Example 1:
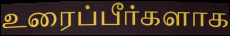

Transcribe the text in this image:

உரைப்பீர்களாக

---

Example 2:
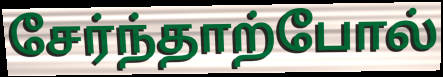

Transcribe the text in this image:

சேர்ந்தாற்போல்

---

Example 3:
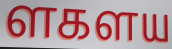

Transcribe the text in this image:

ளகளய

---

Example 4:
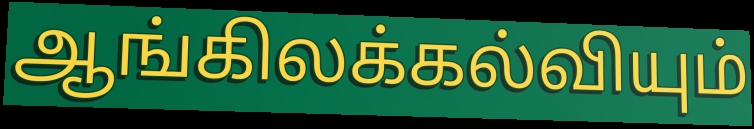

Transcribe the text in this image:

ஆங்கிலக்கல்வியும்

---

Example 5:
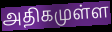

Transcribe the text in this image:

அதிகமுள்ள